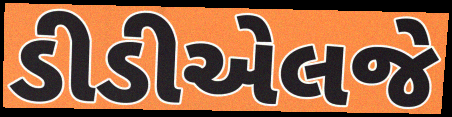
ડીડીએલજે